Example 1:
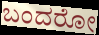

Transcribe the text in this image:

ಬಂದರೋ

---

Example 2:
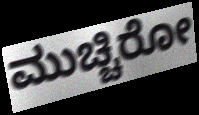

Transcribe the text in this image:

ಮುಚ್ಚಿರೋ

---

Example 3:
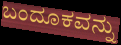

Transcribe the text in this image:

ಬಂದೂಕವನ್ನು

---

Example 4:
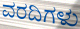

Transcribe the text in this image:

ವರದಿಗಳು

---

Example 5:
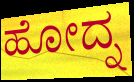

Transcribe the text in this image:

ಹೋದ್ನ